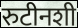
रुटीनशी